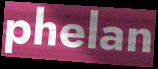
phelan